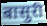
बासुरी